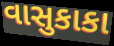
વાસુકાકા